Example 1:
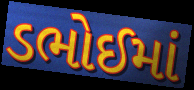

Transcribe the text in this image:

ડભોઈમાં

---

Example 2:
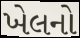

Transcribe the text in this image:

ખેલનો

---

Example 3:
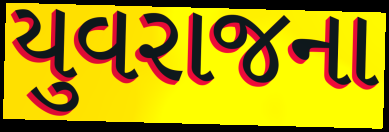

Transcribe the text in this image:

યુવરાજના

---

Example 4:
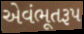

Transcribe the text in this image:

એવંભૂતરૂપ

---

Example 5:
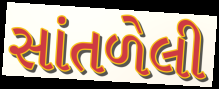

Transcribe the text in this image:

સાંતળેલી